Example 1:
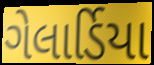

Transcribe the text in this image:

ગેલાર્ડિયા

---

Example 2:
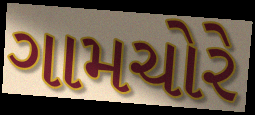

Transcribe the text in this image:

ગામચોરે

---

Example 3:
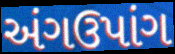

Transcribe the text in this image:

અંગઉપાંગ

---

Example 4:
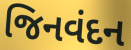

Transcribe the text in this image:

જિનવંદન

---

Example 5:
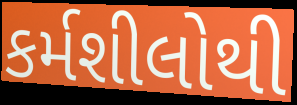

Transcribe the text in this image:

કર્મશીલોથી